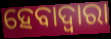
ହେବାଦ୍ୱାରା